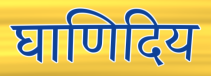
घाणिदिय